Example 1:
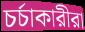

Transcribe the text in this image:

চর্চাকারীরা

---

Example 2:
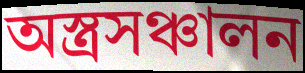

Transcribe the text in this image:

অস্ত্রসঞ্চালন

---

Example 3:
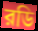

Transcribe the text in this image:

রডি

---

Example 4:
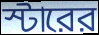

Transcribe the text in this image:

স্টারের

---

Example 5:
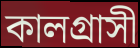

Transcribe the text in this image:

কালগ্রাসী